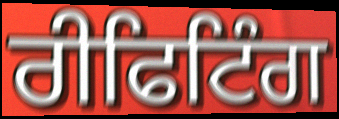
ਰੀਫਿਟਿੰਗ